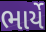
ભાર્યે